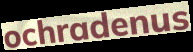
ochradenus